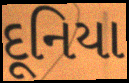
દૂનિયા